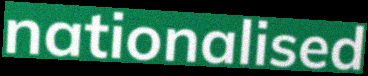
nationalised